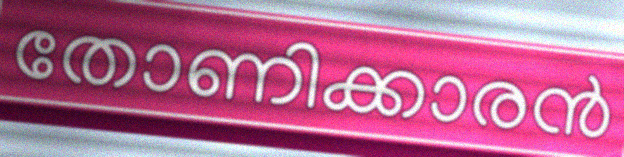
തോണിക്കാരൻ